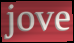
jove